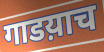
गाडय़ाच